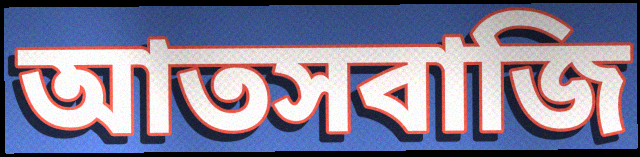
আতসবাজি